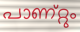
പാണ്റ്റും